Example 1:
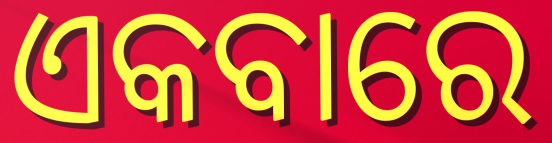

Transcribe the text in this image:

ଏକବାରେ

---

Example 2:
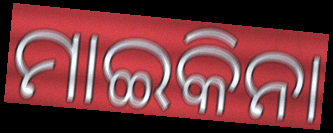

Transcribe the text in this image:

ମାଇକିନା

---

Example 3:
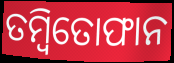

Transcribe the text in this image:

ତମ୍ବିତୋଫାନ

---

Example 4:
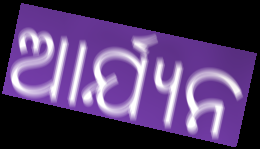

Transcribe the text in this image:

ଆର୍ଯ୍ୟନ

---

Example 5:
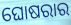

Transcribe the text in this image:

ଘୋଷରାର